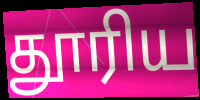
தூரிய